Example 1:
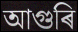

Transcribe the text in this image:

আগুৰি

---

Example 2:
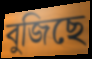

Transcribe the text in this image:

বুজিছে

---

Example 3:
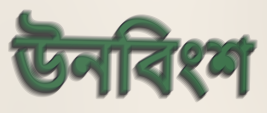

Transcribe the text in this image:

উনবিংশ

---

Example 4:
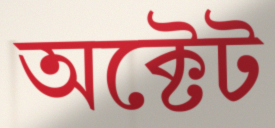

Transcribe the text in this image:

অক্টেট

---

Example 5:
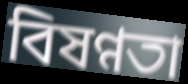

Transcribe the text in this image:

বিষণ্ণতা